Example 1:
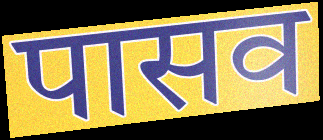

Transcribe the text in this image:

पासव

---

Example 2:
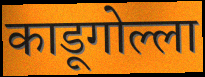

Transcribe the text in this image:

काडूगोल्ला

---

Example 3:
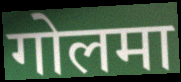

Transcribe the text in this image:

गोलमा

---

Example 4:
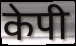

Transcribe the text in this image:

केपी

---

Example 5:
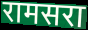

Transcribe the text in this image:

रामसरा